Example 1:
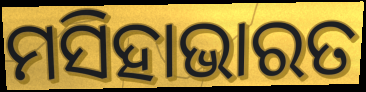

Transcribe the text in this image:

ମସିହାଭାରତ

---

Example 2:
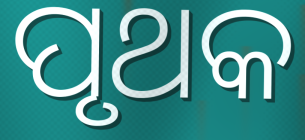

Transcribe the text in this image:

ପୃଥକ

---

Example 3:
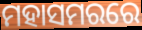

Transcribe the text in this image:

ମହାସମରରେ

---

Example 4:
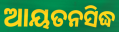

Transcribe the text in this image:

ଆୟତନସିଦ୍ଧ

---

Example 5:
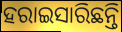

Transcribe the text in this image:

ହରାଇସାରିଛନ୍ତି